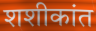
शशीकांत